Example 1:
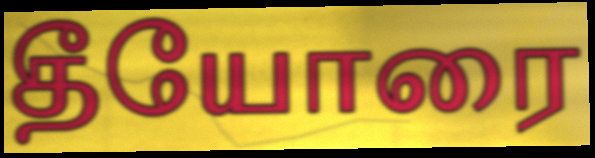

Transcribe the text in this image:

தீயோரை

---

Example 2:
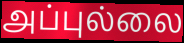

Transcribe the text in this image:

அப்புல்லை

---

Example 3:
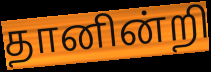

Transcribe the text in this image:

தானின்றி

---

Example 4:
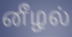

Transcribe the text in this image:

னீழல்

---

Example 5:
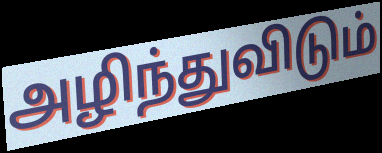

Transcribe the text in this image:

அழிந்துவிடும்